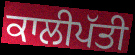
ਕਾਲੀਪੱਤੀ